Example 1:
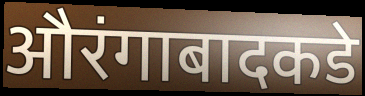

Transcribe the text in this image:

औरंगाबादकडे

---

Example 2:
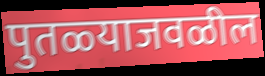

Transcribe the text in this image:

पुतळ्याजवळील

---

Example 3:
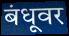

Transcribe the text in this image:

बंधूवर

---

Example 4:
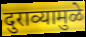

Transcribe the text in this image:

दुराव्यामुळे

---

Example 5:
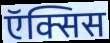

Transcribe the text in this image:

ऍक्सिस